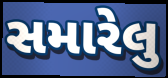
સમારેલુ